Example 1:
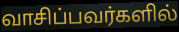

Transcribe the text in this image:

வாசிப்பவர்களில்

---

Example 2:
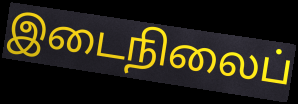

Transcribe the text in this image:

இடைநிலைப்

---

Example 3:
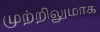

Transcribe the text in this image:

முற்றிலுமாக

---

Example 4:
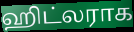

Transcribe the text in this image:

ஹிட்லராக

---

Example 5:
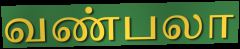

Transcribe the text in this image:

வண்பலா